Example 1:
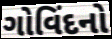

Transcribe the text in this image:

ગોવિંદનો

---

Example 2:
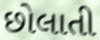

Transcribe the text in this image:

છોલાતી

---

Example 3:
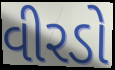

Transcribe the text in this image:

વીરડો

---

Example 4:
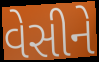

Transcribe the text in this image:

વેસીને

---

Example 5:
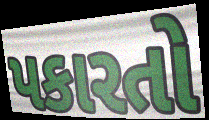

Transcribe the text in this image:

પકારતો